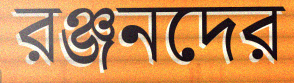
রঞ্জনদের